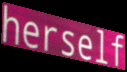
herself